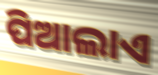
ପିଆଲାଏ